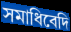
সমাধিবেদি